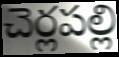
చెర్లపల్లి